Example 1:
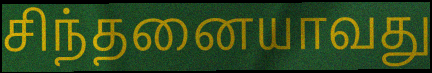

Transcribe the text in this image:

சிந்தனையாவது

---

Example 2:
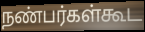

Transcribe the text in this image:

நண்பர்கள்கூட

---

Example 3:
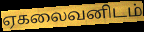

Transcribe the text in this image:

ஏகலைவனிடம்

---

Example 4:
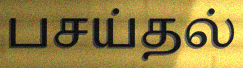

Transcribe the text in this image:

பசய்தல்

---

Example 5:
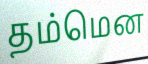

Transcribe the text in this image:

தம்மென